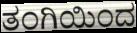
ತಂಗಿಯಿಂದ